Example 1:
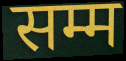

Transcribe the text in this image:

सम्म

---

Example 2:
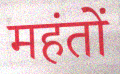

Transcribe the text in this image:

महंतों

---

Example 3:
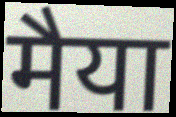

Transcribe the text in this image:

मैया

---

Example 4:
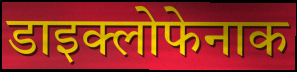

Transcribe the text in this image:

डाइक्लोफेनाक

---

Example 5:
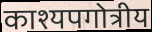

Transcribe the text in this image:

काश्यपगोत्रीय